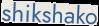
shikshako